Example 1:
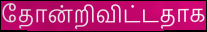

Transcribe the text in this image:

தோன்றிவிட்டதாக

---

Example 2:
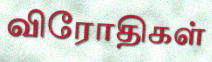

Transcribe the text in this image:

விரோதிகள்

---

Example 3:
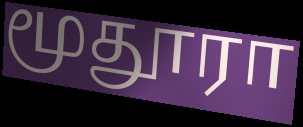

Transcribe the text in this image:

மூதூரா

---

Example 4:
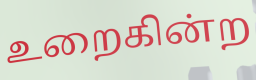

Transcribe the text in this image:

உறைகின்ற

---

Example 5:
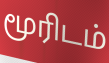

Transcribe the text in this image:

மூரிடம்